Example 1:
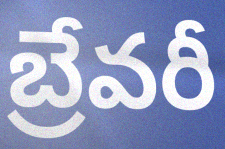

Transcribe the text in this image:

బ్రేవరీ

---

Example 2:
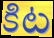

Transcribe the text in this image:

కిట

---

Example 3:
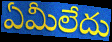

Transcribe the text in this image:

ఏమీలేదు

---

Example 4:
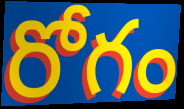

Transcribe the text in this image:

రోగం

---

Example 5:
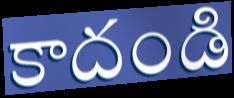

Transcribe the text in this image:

కాదండి